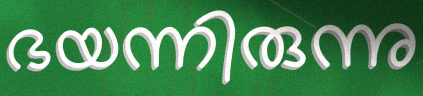
ഭയന്നിരുന്നു